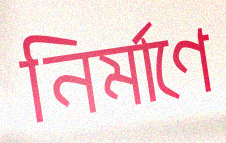
নির্মাণে